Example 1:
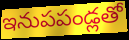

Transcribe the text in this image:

ఇనుపపండ్లతో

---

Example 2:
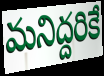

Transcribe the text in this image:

మనిద్దరికే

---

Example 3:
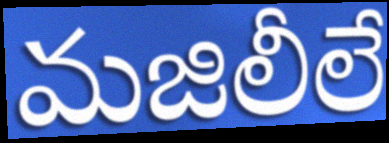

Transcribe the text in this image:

మజిలీలే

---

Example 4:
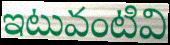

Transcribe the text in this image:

ఇటువంటివి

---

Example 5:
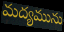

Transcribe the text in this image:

మద్యమును